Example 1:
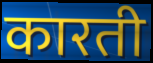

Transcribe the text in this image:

कारती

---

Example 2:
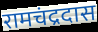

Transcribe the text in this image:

रामचंद्रदास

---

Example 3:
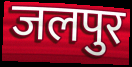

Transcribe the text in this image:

जलपुर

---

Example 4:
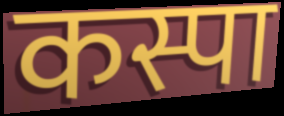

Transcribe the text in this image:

कस्पा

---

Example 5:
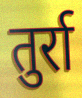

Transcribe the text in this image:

तुर्रा